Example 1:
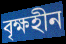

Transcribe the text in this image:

বৃক্ষহীন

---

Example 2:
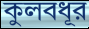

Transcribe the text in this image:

কুলবধূর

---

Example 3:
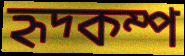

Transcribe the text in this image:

হৃদ্কম্প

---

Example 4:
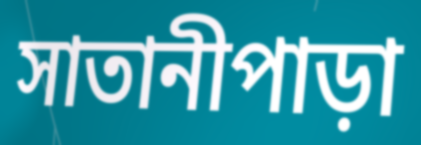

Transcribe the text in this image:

সাতানীপাড়া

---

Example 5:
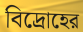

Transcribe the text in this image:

বিদ্রোহের